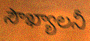
సౌఖ్యాలనీ